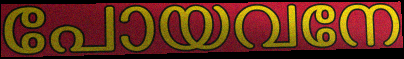
പോയവനേ